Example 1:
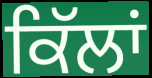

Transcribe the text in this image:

ਕਿੱਲਾਂ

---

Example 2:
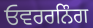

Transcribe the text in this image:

ਓਵਰਰਨਿੰਗ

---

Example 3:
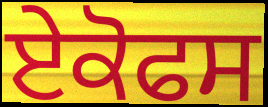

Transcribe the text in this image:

ਏਕੋਫਸ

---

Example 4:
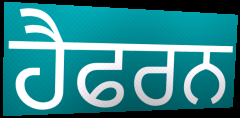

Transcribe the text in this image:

ਹੈਫਰਨ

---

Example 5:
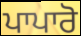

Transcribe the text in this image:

ਪਾਪਾਰੋ